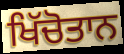
ਖਿੱਚੋਤਾਨ